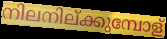
നിലനില്ക്കുമ്പോള്